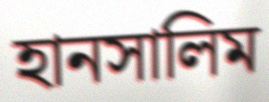
হানসালিম